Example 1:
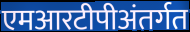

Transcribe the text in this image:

एमआरटीपीअंतर्गत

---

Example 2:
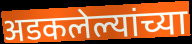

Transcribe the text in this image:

अडकलेल्यांच्या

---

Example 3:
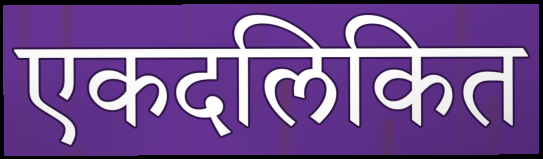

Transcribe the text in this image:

एकदलिकित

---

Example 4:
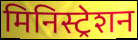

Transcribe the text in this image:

मिनिस्ट्रेशन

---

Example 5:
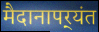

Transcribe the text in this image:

मैदानापर्यंत